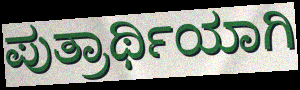
ಪುತ್ರಾರ್ಥಿಯಾಗಿ